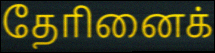
தேரினைக்